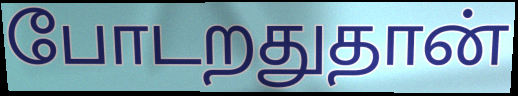
போடறதுதான்